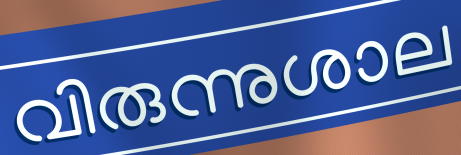
വിരുന്നുശാല